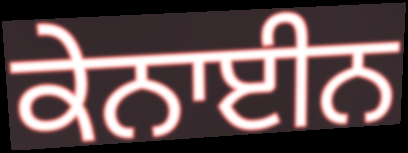
ਕੇਨਾਈਨ